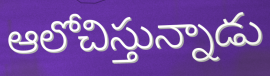
ఆలోచిస్తున్నాడు